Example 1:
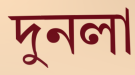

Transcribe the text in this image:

দুনলা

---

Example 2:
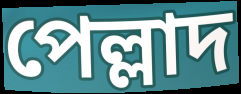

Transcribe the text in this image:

পেল্লাদ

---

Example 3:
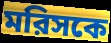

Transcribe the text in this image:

মরিসকে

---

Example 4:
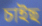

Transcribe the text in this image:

চাইছ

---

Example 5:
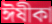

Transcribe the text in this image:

ঈষীকা